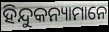
ହିନ୍ଦୁକନ୍ୟାମାନେ